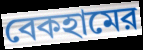
বেকহামের